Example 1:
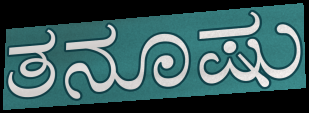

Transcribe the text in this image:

ತನೂಷು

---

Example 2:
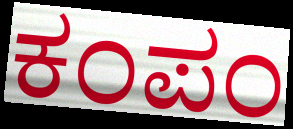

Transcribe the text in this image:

ಕಂಪಂ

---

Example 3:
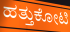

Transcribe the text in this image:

ಹತ್ತುಕೋಟಿ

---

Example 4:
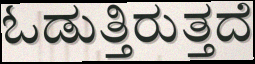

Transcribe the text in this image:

ಓಡುತ್ತಿರುತ್ತದೆ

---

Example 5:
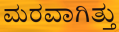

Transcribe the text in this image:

ಮರವಾಗಿತ್ತು